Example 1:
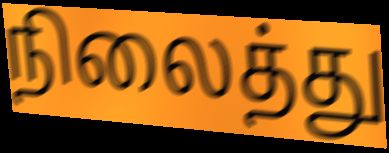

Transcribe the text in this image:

நிலைத்து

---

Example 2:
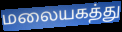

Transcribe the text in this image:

மலையகத்து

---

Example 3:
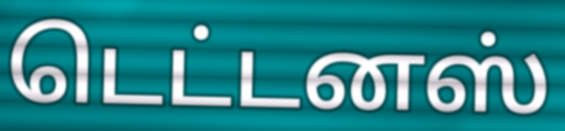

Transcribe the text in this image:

டெட்டனஸ்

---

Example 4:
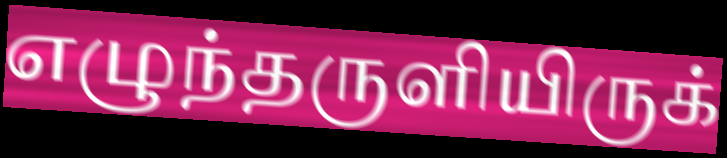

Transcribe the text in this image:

எழுந்தருளியிருக்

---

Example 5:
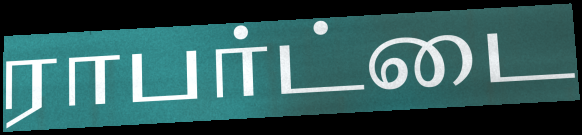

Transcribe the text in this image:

ராபர்ட்டை